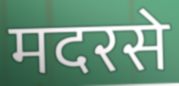
मदरसे